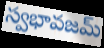
స్వభావజమ్